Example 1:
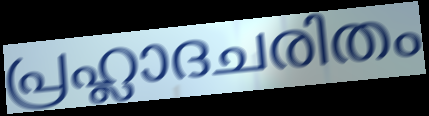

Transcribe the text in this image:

പ്രഹ്ലാദചരിതം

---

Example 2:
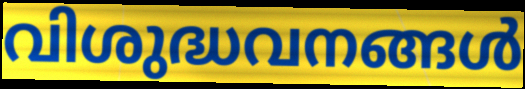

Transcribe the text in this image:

വിശുദ്ധവനങ്ങൾ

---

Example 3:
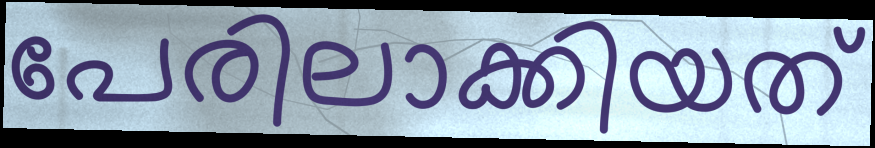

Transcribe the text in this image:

പേരിലാക്കിയത്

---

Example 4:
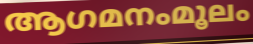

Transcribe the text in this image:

ആഗമനംമൂലം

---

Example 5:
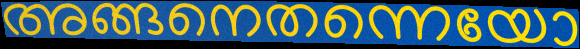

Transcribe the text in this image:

അങ്ങനെതന്നെയോ